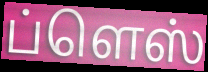
ப்ளெஸ்